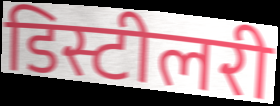
डिस्टीलरी